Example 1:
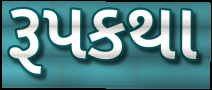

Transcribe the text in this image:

રૂપકથા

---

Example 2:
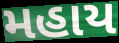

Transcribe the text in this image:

મહાય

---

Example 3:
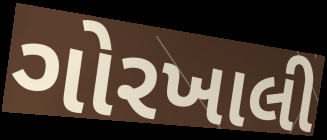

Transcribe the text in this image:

ગોરખાલી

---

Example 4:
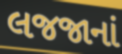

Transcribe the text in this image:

લજજાનાં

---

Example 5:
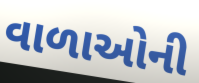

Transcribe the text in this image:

વાળાઓની